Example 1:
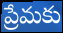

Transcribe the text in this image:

ప్రేమకు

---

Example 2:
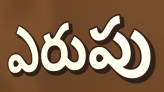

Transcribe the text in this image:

ఎరుపు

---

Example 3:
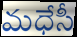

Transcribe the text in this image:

మధేసీ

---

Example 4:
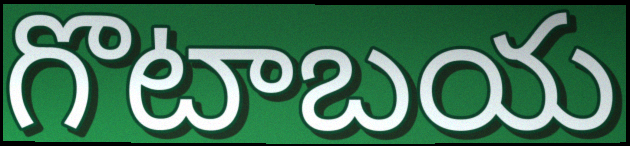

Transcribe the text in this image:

గొటాబయ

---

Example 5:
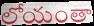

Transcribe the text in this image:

లోయంతా